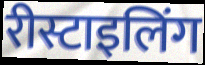
रीस्टाइलिंग